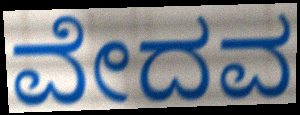
ವೇದವ